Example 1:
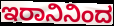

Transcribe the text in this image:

ಇರಾನಿನಿಂದ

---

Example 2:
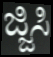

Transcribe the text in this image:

ಜ್ಜಿಸಿ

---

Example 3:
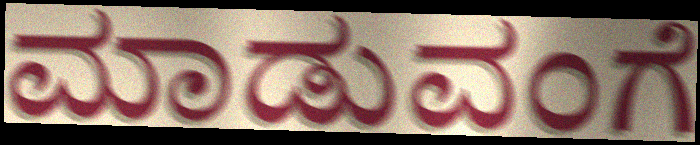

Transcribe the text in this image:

ಮಾಡುವಂಗೆ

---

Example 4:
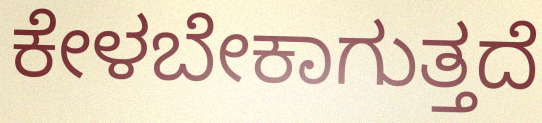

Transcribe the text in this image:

ಕೇಳಬೇಕಾಗುತ್ತದೆ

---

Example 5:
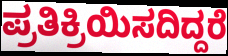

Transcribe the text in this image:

ಪ್ರತಿಕ್ರಿಯಿಸದಿದ್ದರೆ